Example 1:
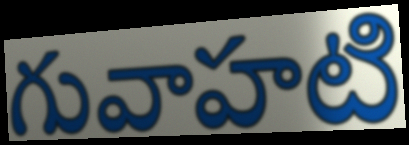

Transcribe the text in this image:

గువాహటి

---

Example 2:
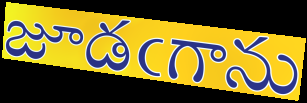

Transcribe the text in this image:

జూడఁగాను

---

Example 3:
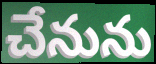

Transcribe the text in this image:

చేనును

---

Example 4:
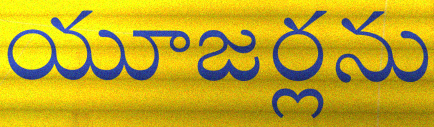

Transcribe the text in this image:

యూజర్లను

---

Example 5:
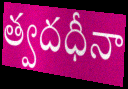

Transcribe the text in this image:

త్వదధీనా